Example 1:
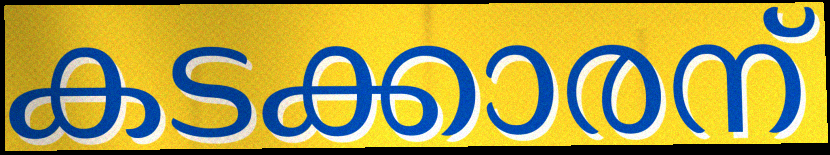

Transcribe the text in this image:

കടക്കാരന്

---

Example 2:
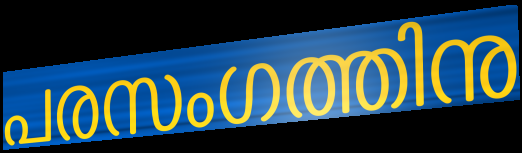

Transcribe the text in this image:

പരസംഗത്തിനു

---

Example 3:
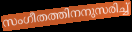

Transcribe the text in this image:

സംഗീതത്തിനനുസരിച്ച്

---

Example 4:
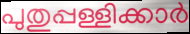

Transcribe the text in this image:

പുതുപ്പള്ളിക്കാർ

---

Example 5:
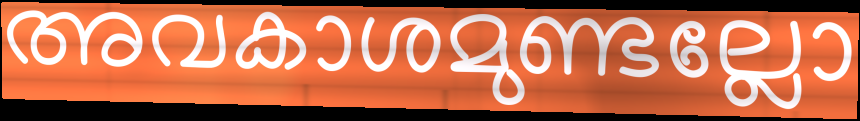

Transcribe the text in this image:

അവകാശമുണ്ടല്ലോ